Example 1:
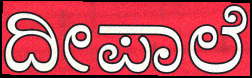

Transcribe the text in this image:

ದೀಪಾಲೆ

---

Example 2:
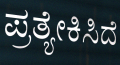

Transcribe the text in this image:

ಪ್ರತ್ಯೇಕಿಸಿದೆ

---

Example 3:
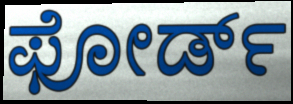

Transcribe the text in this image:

ಫೋರ್ಡ್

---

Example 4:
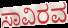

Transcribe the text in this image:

ಸಾವಿರವ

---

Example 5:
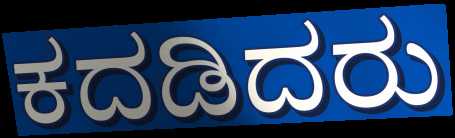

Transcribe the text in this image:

ಕದಡಿದರು